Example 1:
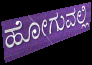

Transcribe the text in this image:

ಹೋಗುವಲ್ಲಿ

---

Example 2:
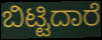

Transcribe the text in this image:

ಬಿಟ್ಟಿದಾರೆ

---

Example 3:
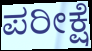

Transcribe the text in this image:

ಪರೀಕ್ಷೆ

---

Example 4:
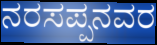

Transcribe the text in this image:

ನರಸಪ್ಪನವರ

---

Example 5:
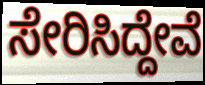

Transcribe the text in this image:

ಸೇರಿಸಿದ್ದೇವೆ